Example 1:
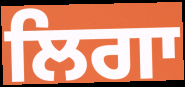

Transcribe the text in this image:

ਲਿਗਾ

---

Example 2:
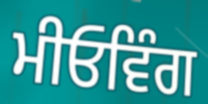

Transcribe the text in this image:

ਮੀਓਵਿੰਗ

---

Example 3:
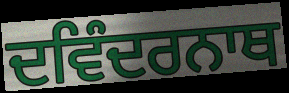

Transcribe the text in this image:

ਦਵਿੰਦਰਨਾਥ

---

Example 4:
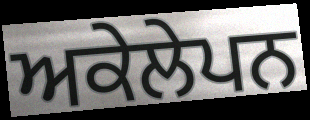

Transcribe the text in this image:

ਅਕੇਲੇਪਨ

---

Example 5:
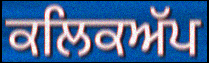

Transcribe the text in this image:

ਕਲਿਕਅੱਪ